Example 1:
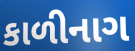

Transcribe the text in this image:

કાળીનાગ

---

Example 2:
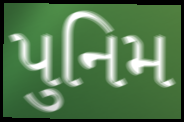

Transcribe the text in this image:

પુનિમ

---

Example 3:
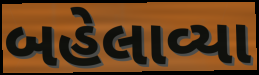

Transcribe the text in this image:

બહેલાવ્યા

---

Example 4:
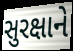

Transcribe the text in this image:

સુરક્ષાને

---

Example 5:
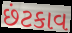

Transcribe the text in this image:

છંટકાવ